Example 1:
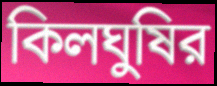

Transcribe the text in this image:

কিলঘুষির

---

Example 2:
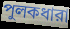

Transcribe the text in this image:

পুলকধারা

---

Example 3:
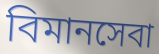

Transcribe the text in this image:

বিমানসেবা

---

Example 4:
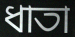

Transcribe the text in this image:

ধাতা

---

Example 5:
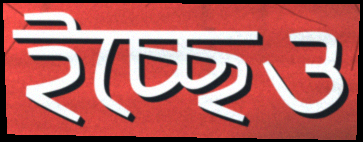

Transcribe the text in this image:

ইচ্ছেও